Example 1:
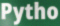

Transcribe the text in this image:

Pytho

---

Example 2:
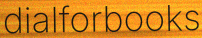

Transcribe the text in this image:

dialforbooks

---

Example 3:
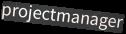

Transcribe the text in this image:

projectmanager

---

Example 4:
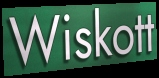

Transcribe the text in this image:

Wiskott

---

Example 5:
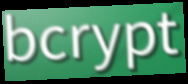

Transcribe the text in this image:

bcrypt